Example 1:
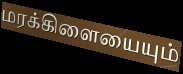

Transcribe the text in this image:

மரக்கிளையையும்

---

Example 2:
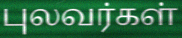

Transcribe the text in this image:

புலவர்கள்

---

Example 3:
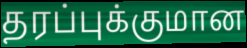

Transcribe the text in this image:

தரப்புக்குமான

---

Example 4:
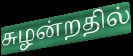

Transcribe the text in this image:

சுழன்றதில்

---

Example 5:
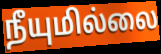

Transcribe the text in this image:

நீயுமில்லை